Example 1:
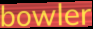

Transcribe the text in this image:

bowler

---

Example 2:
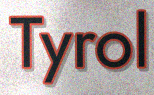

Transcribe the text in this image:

Tyrol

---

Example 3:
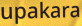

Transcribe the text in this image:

upakara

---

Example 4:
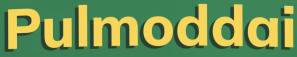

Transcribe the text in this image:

Pulmoddai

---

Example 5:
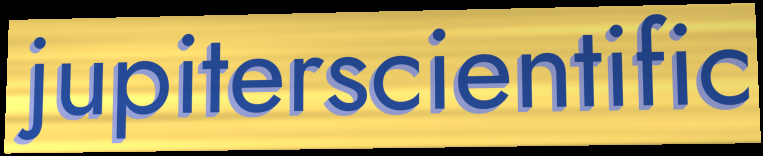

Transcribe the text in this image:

jupiterscientific